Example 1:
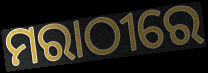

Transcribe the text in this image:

ମରାଠୀରେ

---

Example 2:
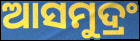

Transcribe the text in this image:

ଆସମୁଦ୍ରଂ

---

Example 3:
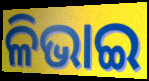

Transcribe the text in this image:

ଳିଭାଇ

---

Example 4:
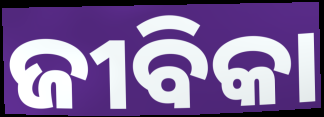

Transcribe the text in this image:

ଜୀବିକା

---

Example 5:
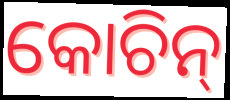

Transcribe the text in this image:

କୋଚିନ୍